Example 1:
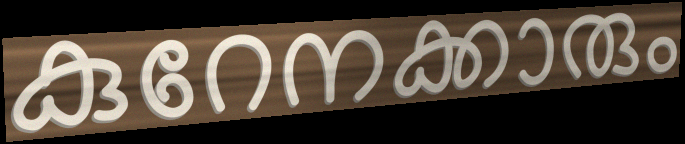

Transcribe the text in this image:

കുറേനക്കാരും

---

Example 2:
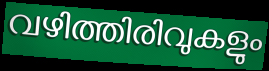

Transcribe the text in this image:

വഴിത്തിരിവുകളും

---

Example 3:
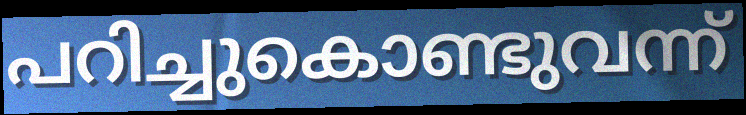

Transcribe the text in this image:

പറിച്ചുകൊണ്ടുവന്ന്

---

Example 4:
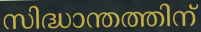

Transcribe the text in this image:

സിദ്ധാന്തത്തിന്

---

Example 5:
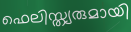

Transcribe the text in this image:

ഫെലിസ്ത്യരുമായി